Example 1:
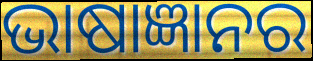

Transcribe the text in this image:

ଭାଷାଜ୍ଞାନର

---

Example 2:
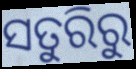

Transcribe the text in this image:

ସତୁରିରୁ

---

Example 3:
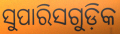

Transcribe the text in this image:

ସୁପାରିସଗୁଡ଼ିକ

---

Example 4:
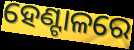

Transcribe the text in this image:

ହେଣ୍ଟାଳରେ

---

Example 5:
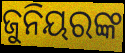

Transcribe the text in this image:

ଜୁନିୟରଙ୍କ